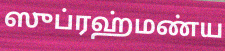
ஸுப்ரஹ்மண்ய